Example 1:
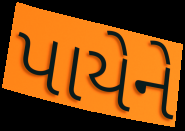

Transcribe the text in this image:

પાયેને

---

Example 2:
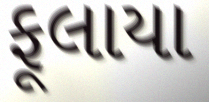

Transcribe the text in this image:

ફૂલાયા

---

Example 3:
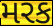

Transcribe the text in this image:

મરક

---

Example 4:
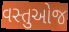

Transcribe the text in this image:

વસ્તુઓજ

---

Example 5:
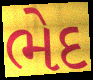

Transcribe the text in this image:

ભેદ